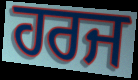
ਹਰਜ